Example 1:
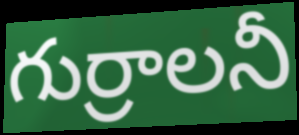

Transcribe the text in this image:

గుర్రాలనీ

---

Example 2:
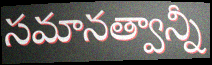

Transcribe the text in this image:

సమానత్వాన్నీ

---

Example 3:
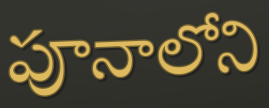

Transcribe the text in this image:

పూనాలోని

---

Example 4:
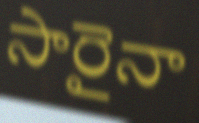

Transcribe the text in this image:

సారైనా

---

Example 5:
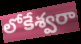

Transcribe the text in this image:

లోకేశ్వరా